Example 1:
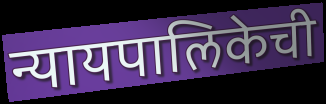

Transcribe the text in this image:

न्यायपालिकेची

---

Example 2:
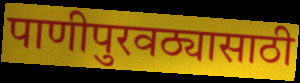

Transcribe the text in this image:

पाणीपुरवठ्यासाठी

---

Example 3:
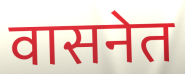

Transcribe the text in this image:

वासनेत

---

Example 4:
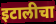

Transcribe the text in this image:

इटालीचा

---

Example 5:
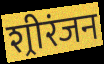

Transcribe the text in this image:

श्रीरंजन